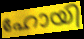
ഹോയി